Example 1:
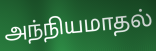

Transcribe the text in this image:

அந்நியமாதல்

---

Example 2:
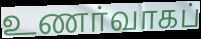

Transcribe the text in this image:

உணர்வாகப்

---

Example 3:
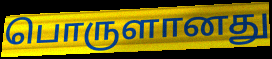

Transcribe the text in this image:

பொருளானது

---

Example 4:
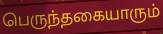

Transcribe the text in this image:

பெருந்தகையாரும்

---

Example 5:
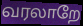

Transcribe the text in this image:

வரலாறே